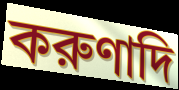
করুণাদি